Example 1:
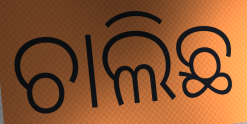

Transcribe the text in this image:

ଚାଲିଛ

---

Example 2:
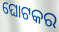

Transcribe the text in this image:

ଘୋଟକର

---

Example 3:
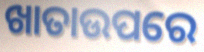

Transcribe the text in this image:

ଖାତାଉପରେ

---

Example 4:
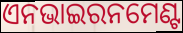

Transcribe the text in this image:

ଏନଭାଇରନମେଣ୍ଟ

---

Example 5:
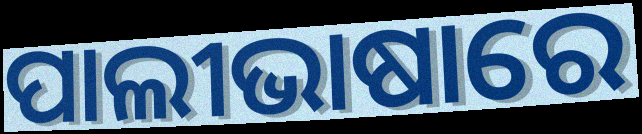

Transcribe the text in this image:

ପାଲୀଭାଷାରେ